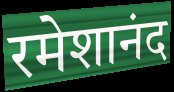
रमेशानंद